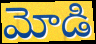
మోడి